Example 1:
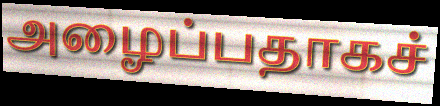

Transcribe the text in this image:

அழைப்பதாகச்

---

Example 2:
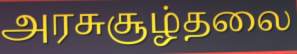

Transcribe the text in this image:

அரசுசூழ்தலை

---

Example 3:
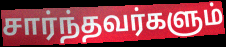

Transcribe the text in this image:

சார்ந்தவர்களும்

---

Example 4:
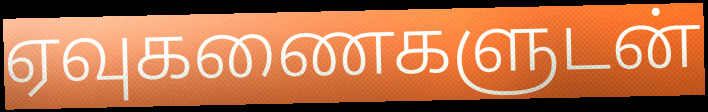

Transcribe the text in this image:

ஏவுகணைகளுடன்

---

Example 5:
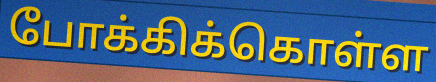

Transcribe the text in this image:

போக்கிக்கொள்ள